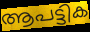
ആപട്ടിക